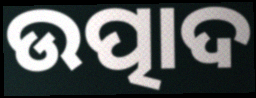
ଉତ୍ପାଦ